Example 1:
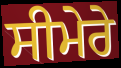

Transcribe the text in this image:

ਸੀਮੇਰੇ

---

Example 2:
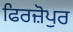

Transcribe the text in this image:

ਫਿਰਜ਼ੋਪੁਰ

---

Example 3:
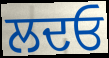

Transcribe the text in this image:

ਲਦਓ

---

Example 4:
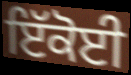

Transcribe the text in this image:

ਇੱਕੋਈ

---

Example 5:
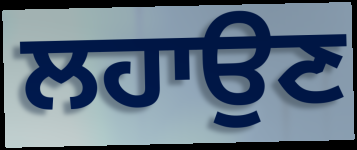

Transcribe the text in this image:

ਲਹਾਉਣ